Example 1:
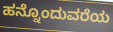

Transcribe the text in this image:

ಹನ್ನೊಂದುವರೆಯ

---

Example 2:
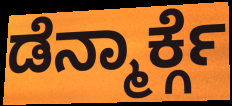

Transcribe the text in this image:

ಡೆನ್ಮಾರ್ಕ್ಗೆ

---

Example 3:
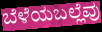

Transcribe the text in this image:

ಬೆಳೆಯಬಲ್ಲೆವು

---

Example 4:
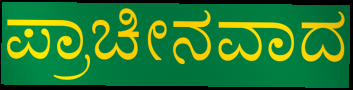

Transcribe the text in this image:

ಪ್ರಾಚೀನವಾದ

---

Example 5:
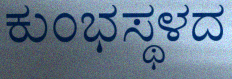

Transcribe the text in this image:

ಕುಂಭಸ್ಥಳದ